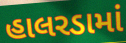
હાલરડામાં